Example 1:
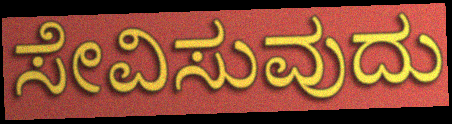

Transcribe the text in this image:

ಸೇವಿಸುವುದು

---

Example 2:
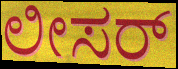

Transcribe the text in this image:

ಲೀಸರ್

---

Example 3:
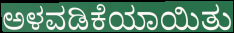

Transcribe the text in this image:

ಅಳವಡಿಕೆಯಾಯಿತು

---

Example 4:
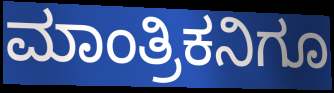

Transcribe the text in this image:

ಮಾಂತ್ರಿಕನಿಗೂ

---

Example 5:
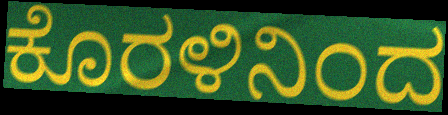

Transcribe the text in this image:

ಕೊರಳಿನಿಂದ